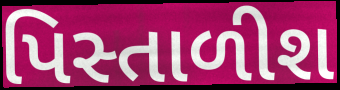
પિસ્તાળીશ